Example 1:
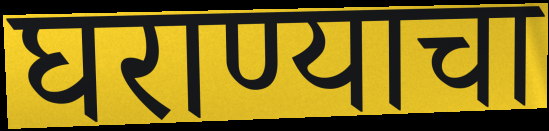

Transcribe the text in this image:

घराण्याचा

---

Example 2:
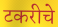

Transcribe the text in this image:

टकरीचे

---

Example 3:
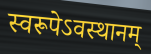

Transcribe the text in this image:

स्वरूपेऽवस्थानम्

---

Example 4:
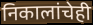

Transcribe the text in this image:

निकालांचेही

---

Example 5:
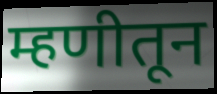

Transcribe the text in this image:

म्हणीतून